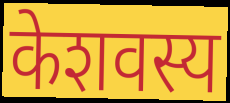
केशवस्य